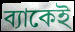
ব্যাকেই